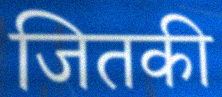
जितकी